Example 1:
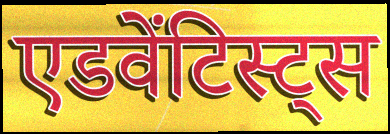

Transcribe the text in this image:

एडवेंटिस्ट्स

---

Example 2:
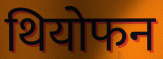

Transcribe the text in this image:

थियोफन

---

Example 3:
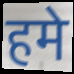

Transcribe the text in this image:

हमे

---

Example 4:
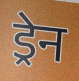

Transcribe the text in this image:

ड्रेन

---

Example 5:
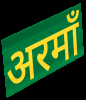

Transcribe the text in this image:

अरमाँ